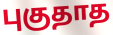
புகுதாத